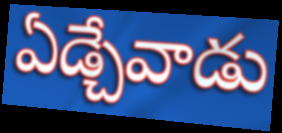
ఏడ్చేవాడు